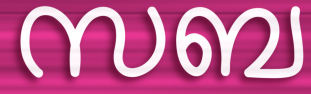
സബ